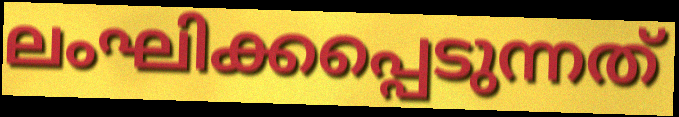
ലംഘിക്കപ്പെടുന്നത്